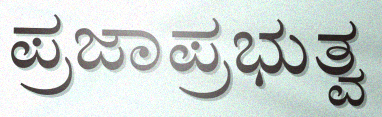
ಪ್ರಜಾಪ್ರಭುತ್ವ